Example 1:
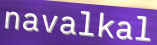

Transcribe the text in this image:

navalkal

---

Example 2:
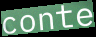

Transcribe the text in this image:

conte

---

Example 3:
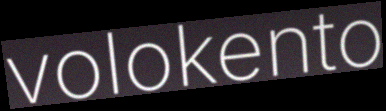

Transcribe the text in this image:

volokento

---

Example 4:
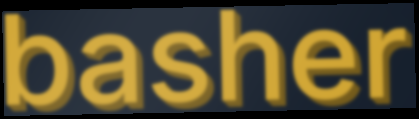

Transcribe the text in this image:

basher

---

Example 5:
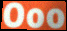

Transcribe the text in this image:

Ooo